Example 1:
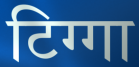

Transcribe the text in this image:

टिग्गा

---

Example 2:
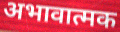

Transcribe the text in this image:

अभावात्मक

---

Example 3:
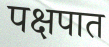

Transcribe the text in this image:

पक्षपात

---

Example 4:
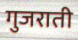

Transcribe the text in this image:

गुजराती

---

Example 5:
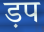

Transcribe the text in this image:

ड़प